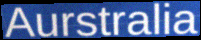
Aurstralia